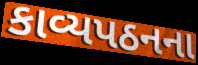
કાવ્યપઠનના